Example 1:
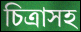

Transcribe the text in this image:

চিত্রাসহ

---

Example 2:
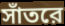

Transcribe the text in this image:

সাঁতরে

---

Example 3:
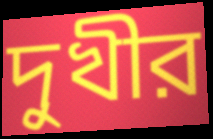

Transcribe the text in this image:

দুখীর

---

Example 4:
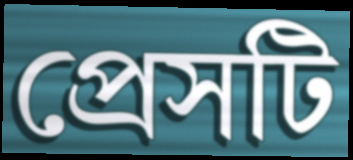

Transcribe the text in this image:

প্রেসটি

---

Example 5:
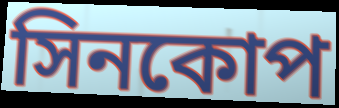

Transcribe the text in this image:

সিনকোপ